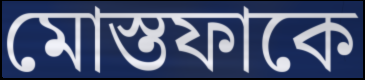
মোস্তফাকে